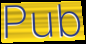
Pub